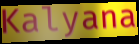
Kalyana